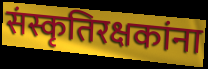
संस्कृतिरक्षकांना